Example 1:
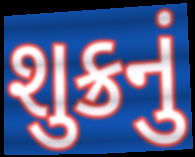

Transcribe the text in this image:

શુક્રનું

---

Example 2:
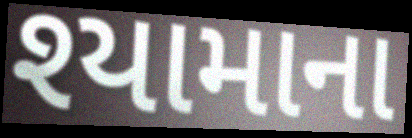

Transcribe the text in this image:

શ્યામાના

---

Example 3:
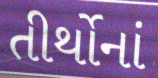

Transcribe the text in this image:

તીર્થોનાં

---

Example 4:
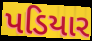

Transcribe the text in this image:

પડિયાર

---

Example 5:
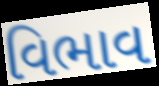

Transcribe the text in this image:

વિભાવ